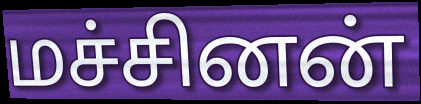
மச்சினன்